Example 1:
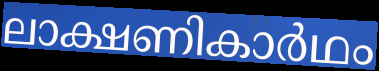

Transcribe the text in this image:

ലാക്ഷണികാർഥം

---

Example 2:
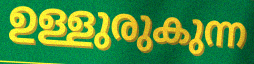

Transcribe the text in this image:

ഉള്ളുരുകുന്ന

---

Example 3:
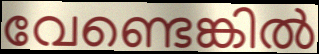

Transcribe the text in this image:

വേണ്ടെങ്കിൽ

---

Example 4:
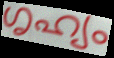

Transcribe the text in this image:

ഗൃഹ്യം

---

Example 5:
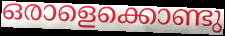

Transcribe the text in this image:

ഒരാളെക്കൊണ്ടു